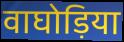
वाघोड़िया